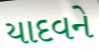
યાદવને